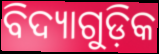
ବିଦ୍ୟାଗୁଡ଼ିକ